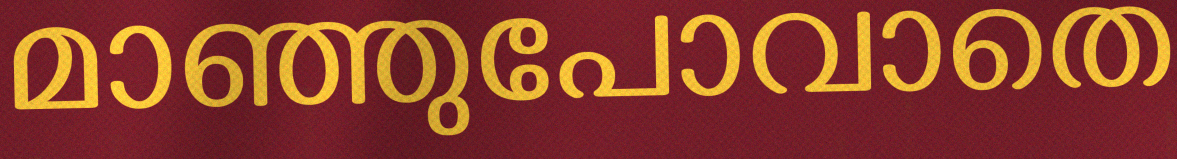
മാഞ്ഞുപോവാതെ